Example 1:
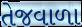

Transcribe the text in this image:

તેજવાળા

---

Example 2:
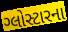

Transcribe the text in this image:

ગ્લોસ્ટારના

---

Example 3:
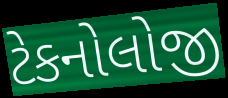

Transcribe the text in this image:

ટેકનોલોજી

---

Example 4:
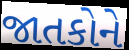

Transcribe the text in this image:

જાતકોને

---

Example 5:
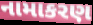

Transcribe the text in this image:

નામાકરણ